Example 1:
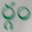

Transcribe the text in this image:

ర్గం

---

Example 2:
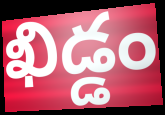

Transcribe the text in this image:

ఖిడ్డం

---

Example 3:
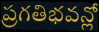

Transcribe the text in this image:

ప్రగతిభవన్లో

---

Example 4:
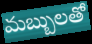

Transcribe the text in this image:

మబ్బులతో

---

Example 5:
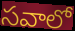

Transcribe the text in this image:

సవాలో